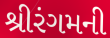
શ્રીરંગમની